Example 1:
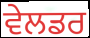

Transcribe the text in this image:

ਵੇਲਡਰ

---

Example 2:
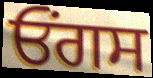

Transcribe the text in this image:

ਓਂਗਸ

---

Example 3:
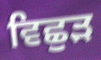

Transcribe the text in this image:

ਵਿਛੁੜ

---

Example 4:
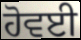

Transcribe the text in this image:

ਹੋਵਈ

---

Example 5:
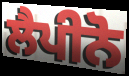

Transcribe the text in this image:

ਲੈਪੀਨੋ